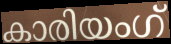
കാരിയംഗ്